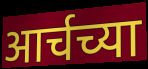
आर्चच्या